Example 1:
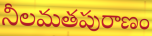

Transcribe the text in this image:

నీలమతపురాణం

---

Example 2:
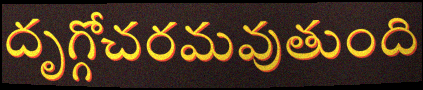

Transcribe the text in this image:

దృగ్గోచరమవుతుంది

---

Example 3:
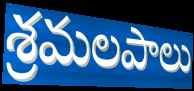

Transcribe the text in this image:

శ్రమలపాలు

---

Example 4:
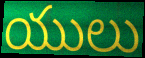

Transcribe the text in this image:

యులు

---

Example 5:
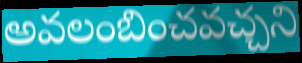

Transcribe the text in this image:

అవలంబించవచ్చని